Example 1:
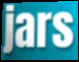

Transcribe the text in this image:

jars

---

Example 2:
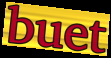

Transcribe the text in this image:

buet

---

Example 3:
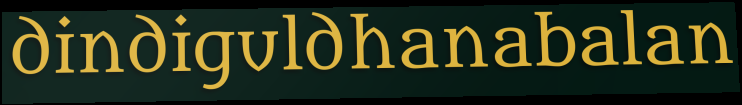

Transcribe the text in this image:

dindiguldhanabalan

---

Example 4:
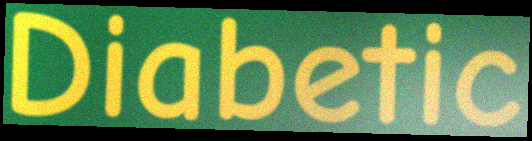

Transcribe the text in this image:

Diabetic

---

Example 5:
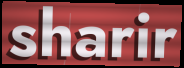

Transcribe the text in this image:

sharir